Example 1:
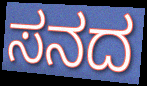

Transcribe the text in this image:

ಸನದ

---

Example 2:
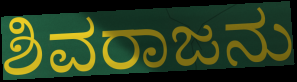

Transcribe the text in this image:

ಶಿವರಾಜನು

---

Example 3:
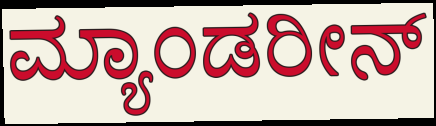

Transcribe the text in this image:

ಮ್ಯಾಂಡರೀನ್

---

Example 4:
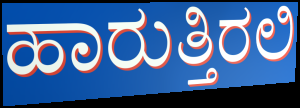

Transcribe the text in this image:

ಹಾರುತ್ತಿರಲಿ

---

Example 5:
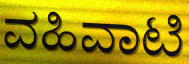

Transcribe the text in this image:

ವಹಿವಾಟಿ